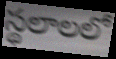
స్థలాలలో